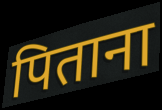
पिताना